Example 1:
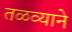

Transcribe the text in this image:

तळव्याने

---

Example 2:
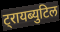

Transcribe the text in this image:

ट्रायब्युटिल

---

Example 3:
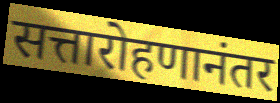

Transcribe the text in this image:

सत्तारोहणानंतर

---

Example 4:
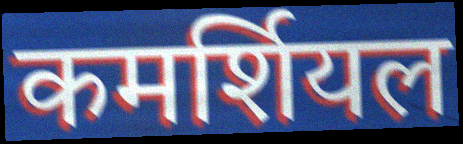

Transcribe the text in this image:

कमर्शियल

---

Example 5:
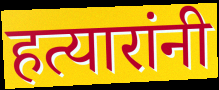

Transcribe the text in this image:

हत्यारांनी